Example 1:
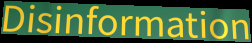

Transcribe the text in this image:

Disinformation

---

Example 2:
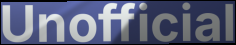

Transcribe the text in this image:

Unofficial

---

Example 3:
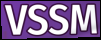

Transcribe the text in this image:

VSSM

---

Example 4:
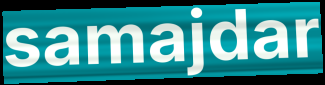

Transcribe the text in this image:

samajdar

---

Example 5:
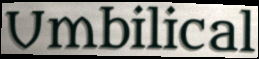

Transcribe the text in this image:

Umbilical